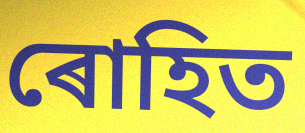
ৰোহিত